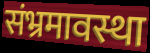
संभ्रमावस्था